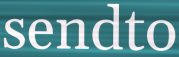
sendto